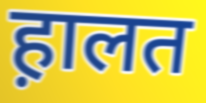
ह़ालत